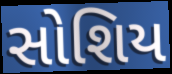
સોશિય